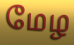
மேழ